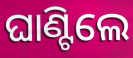
ଘାଣ୍ଟିଲେ